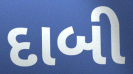
દાબી